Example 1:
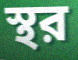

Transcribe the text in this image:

স্থর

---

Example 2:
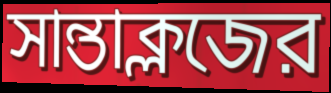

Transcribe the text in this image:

সান্তাক্লজের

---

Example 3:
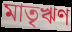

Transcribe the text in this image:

মাতৃঋণ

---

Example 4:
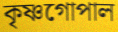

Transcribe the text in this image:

কৃষ্ণগোপাল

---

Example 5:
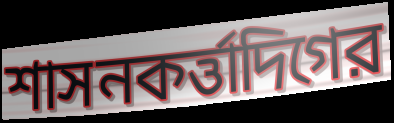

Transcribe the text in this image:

শাসনকর্ত্তাদিগের